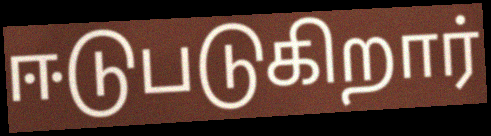
ஈடுபடுகிறார்